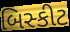
બિસ્કીટ